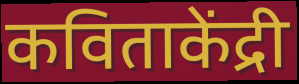
कविताकेंद्री